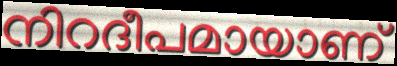
നിറദീപമായാണ്